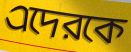
এদেরকে